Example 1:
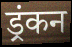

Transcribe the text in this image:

ड्रंकन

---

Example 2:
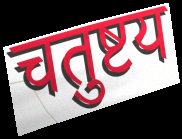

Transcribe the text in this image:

चतुष्टय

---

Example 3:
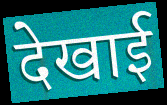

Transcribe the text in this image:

देखाई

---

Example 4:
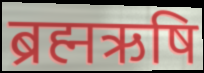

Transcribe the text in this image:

ब्रह्मऋषि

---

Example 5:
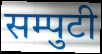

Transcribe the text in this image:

सम्पुटी